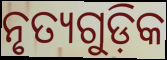
ନୃତ୍ୟଗୁଡ଼ିକ